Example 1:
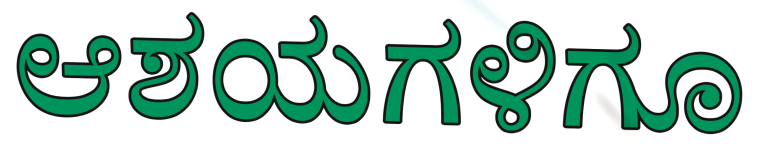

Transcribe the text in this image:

ಆಶಯಗಳಿಗೂ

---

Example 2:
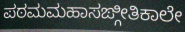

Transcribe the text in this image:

ಪಠಮಮಹಾಸಙ್ಗೀತಿಕಾಲೇ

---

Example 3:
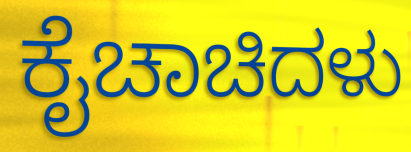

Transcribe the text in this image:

ಕೈಚಾಚಿದಳು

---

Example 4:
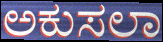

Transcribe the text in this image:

ಅಕುಸಲಾ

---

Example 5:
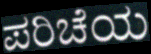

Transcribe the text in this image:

ಪರಿಚೆಯ